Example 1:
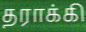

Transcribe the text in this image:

தராக்கி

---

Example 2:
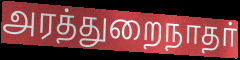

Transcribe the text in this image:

அரத்துறைநாதர்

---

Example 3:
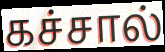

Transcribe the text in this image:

கச்சால்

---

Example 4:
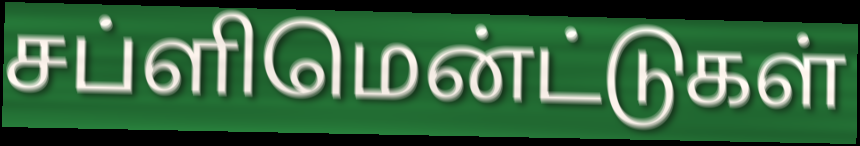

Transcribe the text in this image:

சப்ளிமென்ட்டுகள்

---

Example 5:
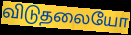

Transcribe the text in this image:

விடுதலையோ